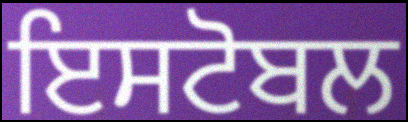
ਇਸਟੋਬਲ